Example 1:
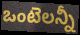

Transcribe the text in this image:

ఒంటెలన్నీ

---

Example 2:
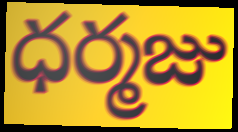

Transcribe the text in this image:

ధర్మజు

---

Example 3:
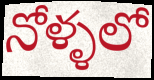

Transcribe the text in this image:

నోళ్ళలో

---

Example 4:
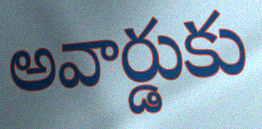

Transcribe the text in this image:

అవార్డుకు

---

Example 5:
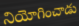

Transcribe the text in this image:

నియోగించాడు